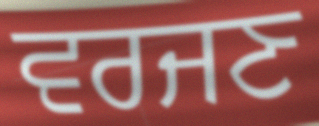
ਵਰਜਣ